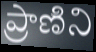
ప్రాణిని